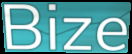
Bize